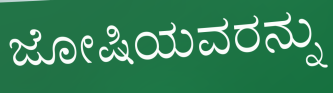
ಜೋಷಿಯವರನ್ನು